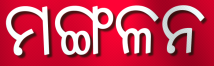
ମଙ୍ଗଳନ